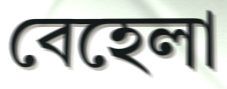
বেহেলা